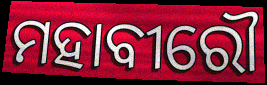
ମହାବୀରୌ